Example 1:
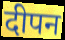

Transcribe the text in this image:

दीपन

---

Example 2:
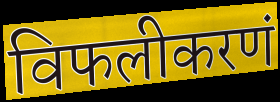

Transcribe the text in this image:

विफलीकरणं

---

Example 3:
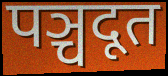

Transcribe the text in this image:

पञ्चदूत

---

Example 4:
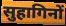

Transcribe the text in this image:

सुहागिनों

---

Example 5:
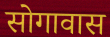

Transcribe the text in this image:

सोगावास